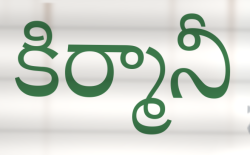
కిర్మానీ